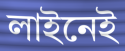
লাইনেই